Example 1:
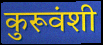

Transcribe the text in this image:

कुरूवंशी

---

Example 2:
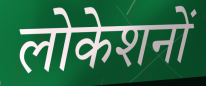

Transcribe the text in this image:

लोकेशनों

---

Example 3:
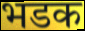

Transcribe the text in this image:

भडक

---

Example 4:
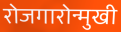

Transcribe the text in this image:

रोजगारोन्मुखी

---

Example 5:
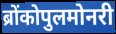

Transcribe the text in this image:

ब्रोंकोपुलमोनरी